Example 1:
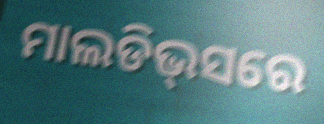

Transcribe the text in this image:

ମାଲଡିଭ୍‌ସରେ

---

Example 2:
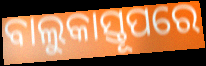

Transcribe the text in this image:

ବାଲୁକାସ୍ତୂପରେ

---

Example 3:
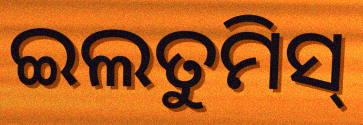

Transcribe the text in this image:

ଇଲତୁମିସ୍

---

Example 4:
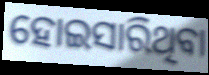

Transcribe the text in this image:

ହୋଇସାରିଥିବା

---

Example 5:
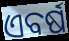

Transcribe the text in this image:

ଏବର୍ଷ